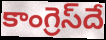
కాంగ్రెస్‌దే